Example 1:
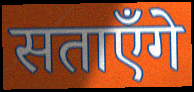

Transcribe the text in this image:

सताएँगे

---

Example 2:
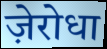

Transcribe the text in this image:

ज़ेरोधा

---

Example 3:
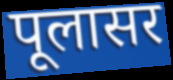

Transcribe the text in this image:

पूलासर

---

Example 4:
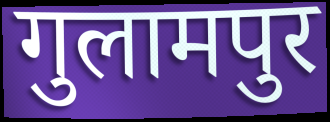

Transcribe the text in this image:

गुलामपुर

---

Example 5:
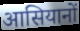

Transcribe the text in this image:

आसियानों